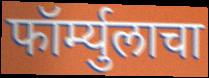
फॉर्म्युलाचा